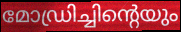
മോഡ്രിച്ചിന്റെയും